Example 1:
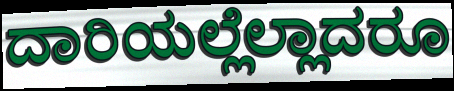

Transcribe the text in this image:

ದಾರಿಯಲ್ಲೆಲ್ಲಾದರೂ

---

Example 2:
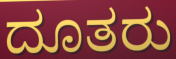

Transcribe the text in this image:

ದೂತರು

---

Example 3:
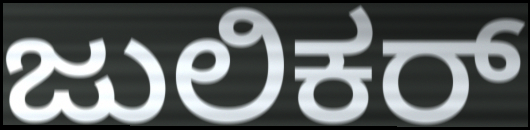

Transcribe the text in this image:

ಜುಲಿಕರ್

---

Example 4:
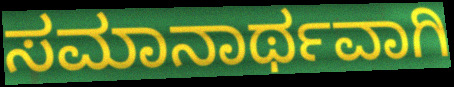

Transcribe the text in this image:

ಸಮಾನಾರ್ಥವಾಗಿ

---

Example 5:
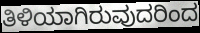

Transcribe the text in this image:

ತಿಳಿಯಾಗಿರುವುದರಿಂದ